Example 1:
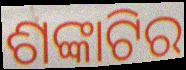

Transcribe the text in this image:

ଶଙ୍କାଟିର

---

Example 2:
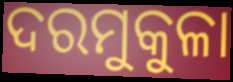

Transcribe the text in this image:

ଦରମୁକୁଳା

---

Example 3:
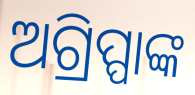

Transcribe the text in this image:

ଅଗ୍ରିପ୍ପାଙ୍କ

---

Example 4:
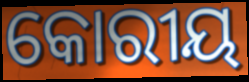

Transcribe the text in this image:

କୋରୀୟ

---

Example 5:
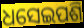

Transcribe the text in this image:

ଧସେଇପଶି